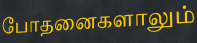
போதனைகளாலும்